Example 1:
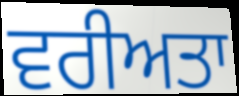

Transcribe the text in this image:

ਵਰੀਅਤਾ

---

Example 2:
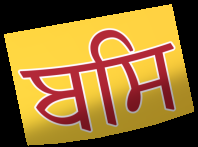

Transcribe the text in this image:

ਬਸਿ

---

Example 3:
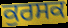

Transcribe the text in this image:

ਕੁਰਸਕ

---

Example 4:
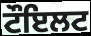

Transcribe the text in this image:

ਟੌਇਲਟ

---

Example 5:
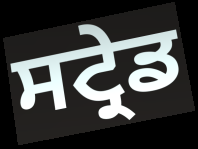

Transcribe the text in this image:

ਸਟ੍ਰੇਡ